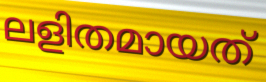
ലളിതമായത്